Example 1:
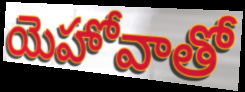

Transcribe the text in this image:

యెహోవాతో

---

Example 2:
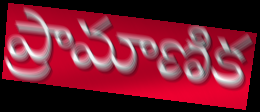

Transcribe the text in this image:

ప్రామాణిక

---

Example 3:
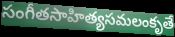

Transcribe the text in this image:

సంగీతసాహిత్యసమలంకృతే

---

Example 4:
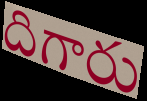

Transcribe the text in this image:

దిగారు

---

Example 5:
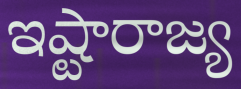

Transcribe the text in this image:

ఇష్టారాజ్య